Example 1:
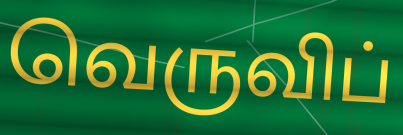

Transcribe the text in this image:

வெருவிப்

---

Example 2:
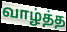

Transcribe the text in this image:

வாழ்த்த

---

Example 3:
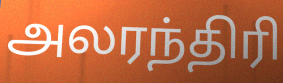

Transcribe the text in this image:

அலரந்திரி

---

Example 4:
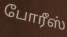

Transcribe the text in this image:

போரீஸ்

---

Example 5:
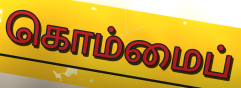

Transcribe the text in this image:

கொம்மைப்